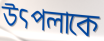
উৎপলাকে